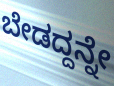
ಬೇಡದ್ದನ್ನೇ